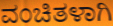
ವಂಚಿತಳಾಗಿ